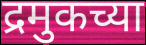
द्रमुकच्या